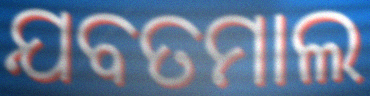
ଯବତମାଲ